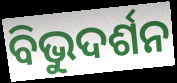
ବିଭୁଦର୍ଶନ